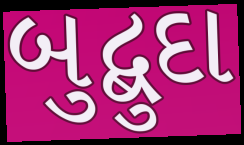
બુદ્બુદા